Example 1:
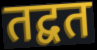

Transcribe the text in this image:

तद्वत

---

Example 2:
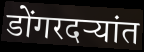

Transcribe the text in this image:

डोंगरदऱ्यांत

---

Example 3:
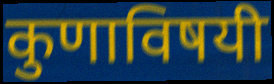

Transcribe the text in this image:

कुणाविषयी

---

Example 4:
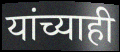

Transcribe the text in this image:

यांच्याही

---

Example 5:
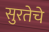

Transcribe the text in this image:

सुरतेचे